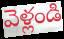
వెళ్లండి